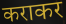
कराकर